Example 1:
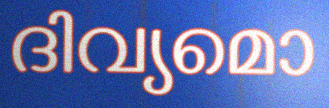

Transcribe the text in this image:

ദിവ്യമൊ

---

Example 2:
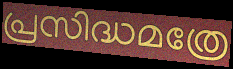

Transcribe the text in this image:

പ്രസിദ്ധമത്രേ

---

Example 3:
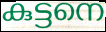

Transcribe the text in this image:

കുട്ടനെ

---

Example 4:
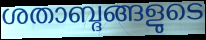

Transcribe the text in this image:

ശതാബ്ദങ്ങളുടെ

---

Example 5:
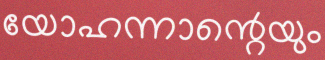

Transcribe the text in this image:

യോഹന്നാന്റെയും